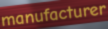
manufacturer